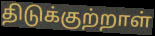
திடுக்குற்றாள்